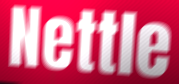
Nettle